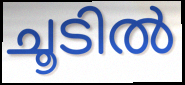
ചൂടിൽ